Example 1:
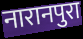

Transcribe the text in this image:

नारानपुरा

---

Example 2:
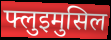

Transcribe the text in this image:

फ्लुइमुसिल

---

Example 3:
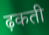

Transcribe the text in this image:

ढ़कती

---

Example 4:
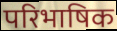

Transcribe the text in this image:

परिभाषिक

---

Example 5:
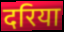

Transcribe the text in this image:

दरिया